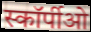
स्कॉर्पीओ